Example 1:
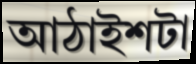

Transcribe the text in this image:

আঠাইশটা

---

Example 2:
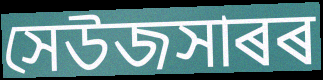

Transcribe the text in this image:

সেউজসাৰৰ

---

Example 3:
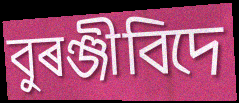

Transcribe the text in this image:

বুৰঞ্জীবিদে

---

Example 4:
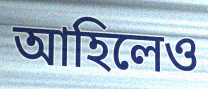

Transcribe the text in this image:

আহিলেও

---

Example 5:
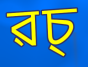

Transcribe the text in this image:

ৱচ্